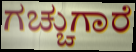
ಗಚ್ಚುಗಾರೆ